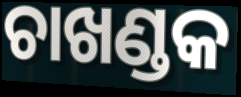
ଚାଖଣ୍ଡକ